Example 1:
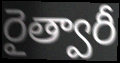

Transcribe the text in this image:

రైత్వారీ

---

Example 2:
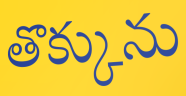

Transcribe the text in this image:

తొక్కును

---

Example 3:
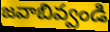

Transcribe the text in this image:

జవాబివ్వండి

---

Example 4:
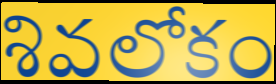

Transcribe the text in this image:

శివలోకం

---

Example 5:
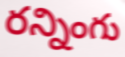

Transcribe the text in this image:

రన్నింగు